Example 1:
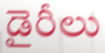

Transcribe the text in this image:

డైరీలు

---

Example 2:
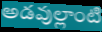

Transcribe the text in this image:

అడవుల్లాంటి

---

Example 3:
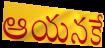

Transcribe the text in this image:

ఆయనకే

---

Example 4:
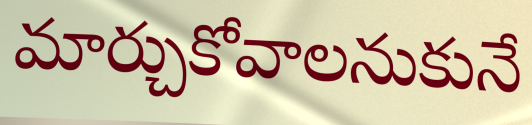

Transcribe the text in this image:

మార్చుకోవాలనుకునే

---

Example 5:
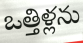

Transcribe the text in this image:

ఒత్తిళ్లను